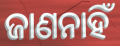
ଜାଣନାହିଁ